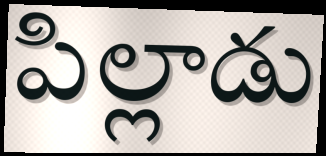
పిల్లాడు